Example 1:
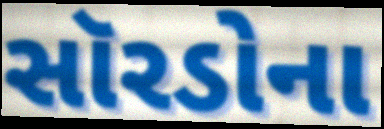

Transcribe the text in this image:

સૉરડોના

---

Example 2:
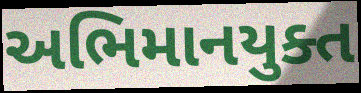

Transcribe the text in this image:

અભિમાનયુક્ત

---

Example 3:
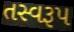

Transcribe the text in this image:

તસ્વરૂપ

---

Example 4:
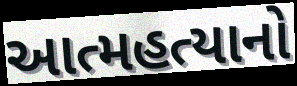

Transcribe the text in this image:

આત્મહત્યાનો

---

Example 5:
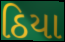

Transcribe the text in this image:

ઠિયા